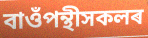
বাওঁপন্থীসকলৰ